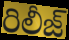
రిలీజ్